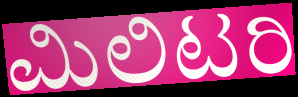
ಮಿಲಿಟರಿ